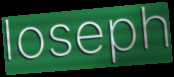
Ioseph